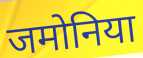
जमोनिया